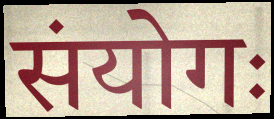
संयोगः